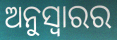
ଅନୁସ୍ଵାରର